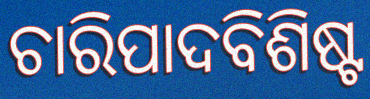
ଚାରିପାଦବିଶିଷ୍ଟ